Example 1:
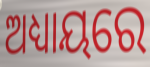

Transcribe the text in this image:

ଅଧ୍ୟାୟରେ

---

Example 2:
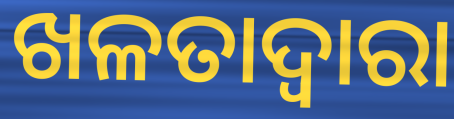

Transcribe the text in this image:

ଖଳତାଦ୍ଵାରା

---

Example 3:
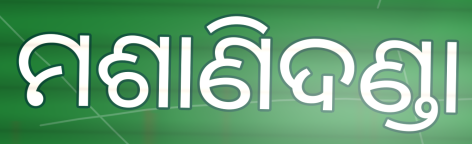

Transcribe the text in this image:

ମଶାଣିଦଣ୍ଡା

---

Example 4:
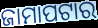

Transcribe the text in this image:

ଜାମାପଟାର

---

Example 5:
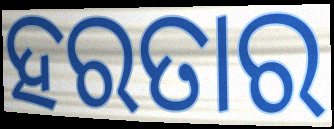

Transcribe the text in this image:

ହରତାର